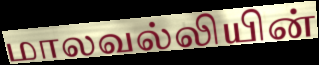
மாலவல்லியின்